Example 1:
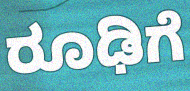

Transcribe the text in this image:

ರೂಢಿಗೆ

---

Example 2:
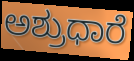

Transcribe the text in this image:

ಅಶ್ರುಧಾರೆ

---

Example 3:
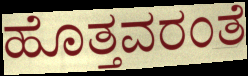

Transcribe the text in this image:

ಹೊತ್ತವರಂತೆ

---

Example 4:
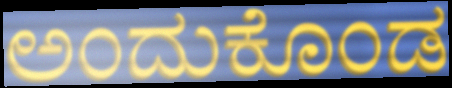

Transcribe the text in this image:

ಅಂದುಕೊಂಡ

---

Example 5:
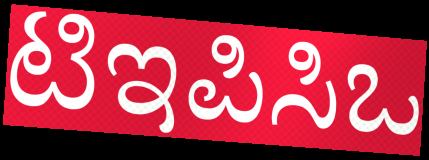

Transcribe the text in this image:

ಟಿಇಪಿಸಿಒ